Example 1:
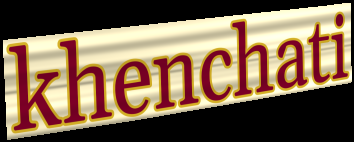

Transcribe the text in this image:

khenchati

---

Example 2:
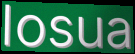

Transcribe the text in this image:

Iosua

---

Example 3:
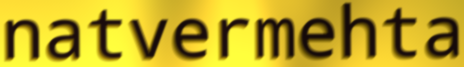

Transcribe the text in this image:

natvermehta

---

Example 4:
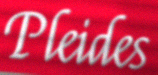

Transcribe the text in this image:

Pleides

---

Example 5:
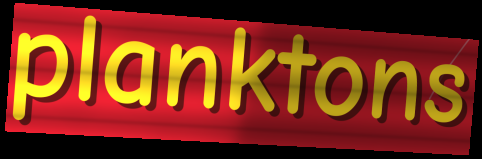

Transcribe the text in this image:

planktons